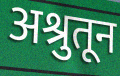
अश्रुतून